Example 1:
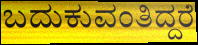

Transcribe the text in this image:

ಬದುಕುವಂತಿದ್ದರೆ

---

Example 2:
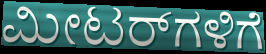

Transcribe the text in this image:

ಮೀಟರ್‌ಗಳಿಗೆ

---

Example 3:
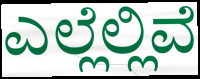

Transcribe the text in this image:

ಎಲ್ಲೆಲ್ಲಿವೆ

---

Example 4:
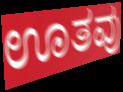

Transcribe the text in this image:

ಊತವು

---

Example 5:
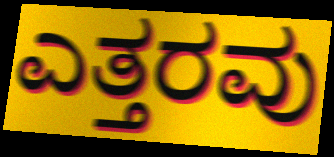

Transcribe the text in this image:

ಎತ್ತರವು